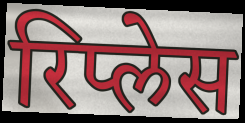
रिप्लेस